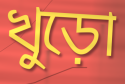
খুড়ো